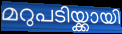
മറുപടിയ്ക്കായി